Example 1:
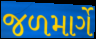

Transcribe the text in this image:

જળમાર્ગે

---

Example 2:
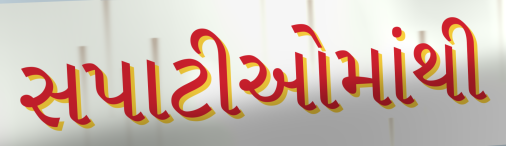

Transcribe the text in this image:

સપાટીઓમાંથી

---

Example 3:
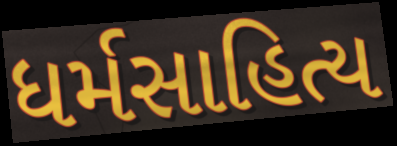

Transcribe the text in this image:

ધર્મસાહિત્ય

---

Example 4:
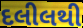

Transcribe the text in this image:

દલીલથી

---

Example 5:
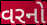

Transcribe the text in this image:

વરનો